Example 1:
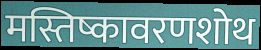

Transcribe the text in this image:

मस्तिष्कावरणशोथ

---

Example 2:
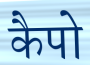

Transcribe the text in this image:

कैपो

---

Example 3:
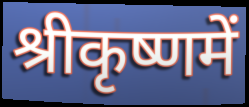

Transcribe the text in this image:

श्रीकृष्णमें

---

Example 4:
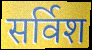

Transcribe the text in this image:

सर्विश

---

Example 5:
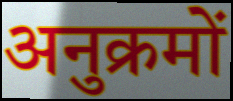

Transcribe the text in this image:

अनुक्रमों